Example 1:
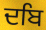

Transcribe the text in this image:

ਦਬਿ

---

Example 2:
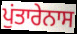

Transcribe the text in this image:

ਪੁਂਤਾਰੇਨਾਸ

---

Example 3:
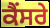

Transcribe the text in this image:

ਕੈਂਸਰੇ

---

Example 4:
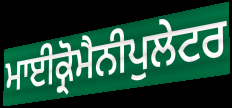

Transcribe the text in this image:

ਮਾਈਕ੍ਰੋਮੈਨੀਪੁਲੇਟਰ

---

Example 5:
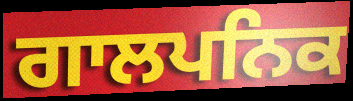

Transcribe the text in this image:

ਗਾਲਪਨਿਕ